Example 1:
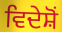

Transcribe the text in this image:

ਵਿਦੇਸ਼ੋਂ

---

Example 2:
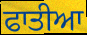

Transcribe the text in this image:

ਫਾਤੀਆ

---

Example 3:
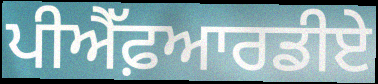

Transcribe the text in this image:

ਪੀਐੱਫ਼ਆਰਡੀਏ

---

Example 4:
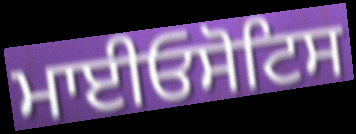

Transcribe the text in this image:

ਮਾਈਓਸੋਟਿਸ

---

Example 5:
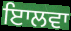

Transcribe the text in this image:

ਇਾਲਵਾ